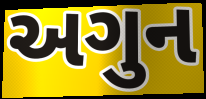
અગુન